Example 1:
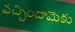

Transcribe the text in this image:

వచ్చిందామెకు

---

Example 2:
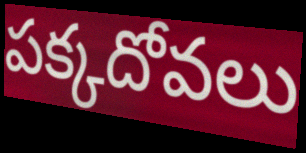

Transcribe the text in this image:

పక్కదోవలు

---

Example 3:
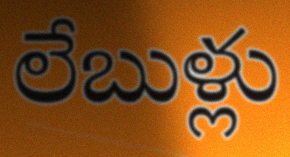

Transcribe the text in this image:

లేబుళ్లు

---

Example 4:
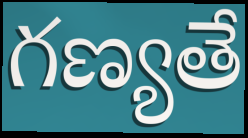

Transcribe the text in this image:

గణ్యతే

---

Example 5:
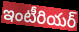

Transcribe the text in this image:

ఇంటీరియర్